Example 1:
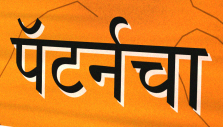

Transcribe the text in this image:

पॅटर्नचा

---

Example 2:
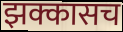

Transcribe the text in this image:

झक्कासच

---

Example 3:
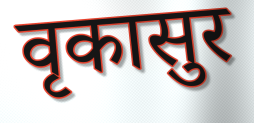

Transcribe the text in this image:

वृकासुर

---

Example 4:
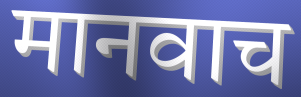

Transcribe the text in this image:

मानवाच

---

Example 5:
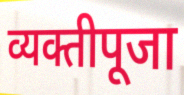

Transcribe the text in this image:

व्यक्तीपूजा